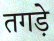
तगड़े